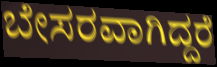
ಬೇಸರವಾಗಿದ್ದರೆ